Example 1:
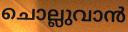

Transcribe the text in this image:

ചൊല്ലുവാൻ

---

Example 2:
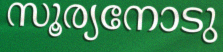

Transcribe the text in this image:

സൂര്യനോടു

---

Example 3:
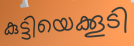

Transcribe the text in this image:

കുട്ടിയെക്കൂടി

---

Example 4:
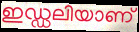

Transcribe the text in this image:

ഇഡ്ഡലിയാണ്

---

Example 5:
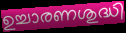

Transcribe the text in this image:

ഉച്ചാരണശുദ്ധി